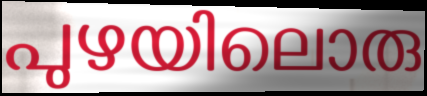
പുഴയിലൊരു